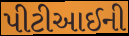
પીટીઆઈની